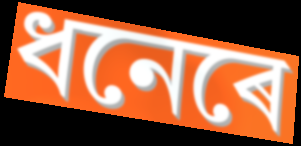
ধনেৰে